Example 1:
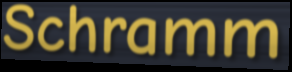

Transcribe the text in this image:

Schramm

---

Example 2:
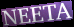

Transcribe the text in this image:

NEETA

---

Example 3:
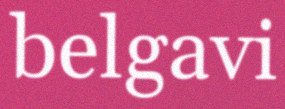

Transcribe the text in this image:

belgavi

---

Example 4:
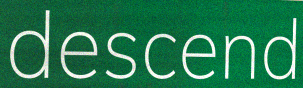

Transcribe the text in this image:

descend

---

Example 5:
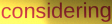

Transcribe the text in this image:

considering